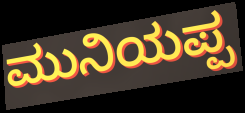
ಮುನಿಯಪ್ಪ